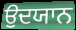
ਉਦਯਾਨ